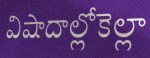
విషాదాల్లోకెల్లా